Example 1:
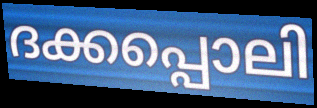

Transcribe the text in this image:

ദക്കപ്പൊലി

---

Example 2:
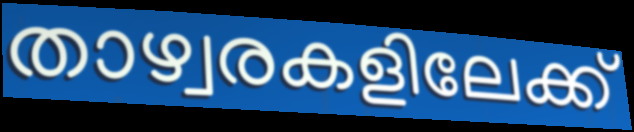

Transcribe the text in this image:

താഴ്വരകളിലേക്ക്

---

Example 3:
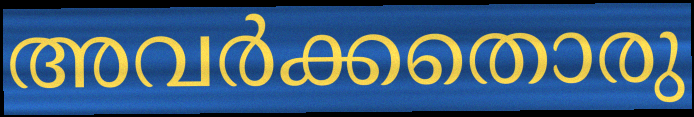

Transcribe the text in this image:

അവർക്കതൊരു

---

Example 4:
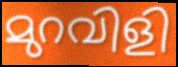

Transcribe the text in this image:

മുറവിളി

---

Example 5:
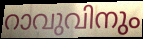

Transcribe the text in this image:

റാവുവിനും